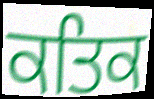
ਕਤਿਕ